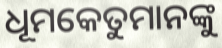
ଧୂମକେତୁମାନଙ୍କୁ